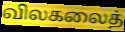
விலகலைத்